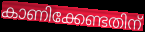
കാണിക്കേണ്ടതിന്